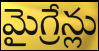
మైగ్రేన్లు